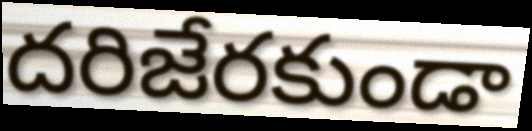
దరిజేరకుండా